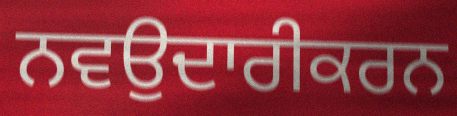
ਨਵਉਦਾਰੀਕਰਨ